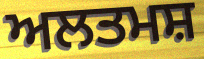
ਅਲਤਮਸ਼